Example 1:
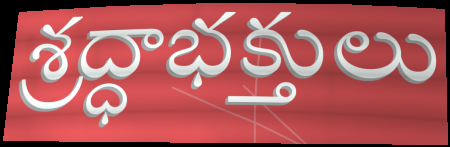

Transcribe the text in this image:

శ్రద్ధాభక్తులు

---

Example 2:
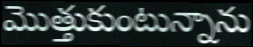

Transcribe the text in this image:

మొత్తుకుంటున్నాను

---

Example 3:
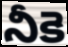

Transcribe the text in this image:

నీకె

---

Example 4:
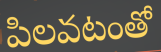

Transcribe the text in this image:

పిలవటంతో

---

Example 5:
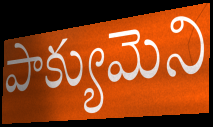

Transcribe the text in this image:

పాక్యుమెని